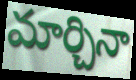
మార్చినా